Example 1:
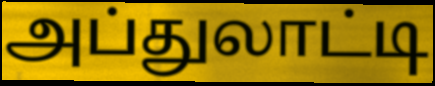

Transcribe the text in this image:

அப்துலாட்டி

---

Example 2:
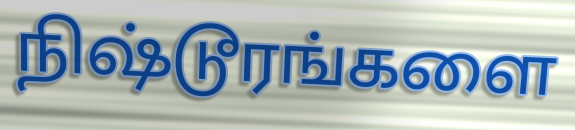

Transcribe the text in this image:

நிஷ்டூரங்களை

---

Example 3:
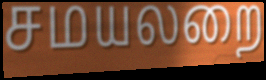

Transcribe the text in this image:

சமயலறை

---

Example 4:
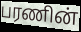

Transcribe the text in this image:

பரணின்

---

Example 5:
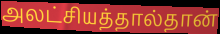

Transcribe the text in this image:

அலட்சியத்தால்தான்